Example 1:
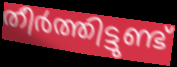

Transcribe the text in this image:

തീർത്തിട്ടുണ്ട്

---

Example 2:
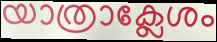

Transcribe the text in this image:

യാത്രാക്ലേശം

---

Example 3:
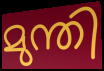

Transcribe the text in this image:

മുന്തി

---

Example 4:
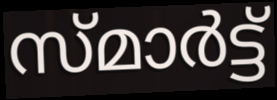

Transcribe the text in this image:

സ്മാർട്ട്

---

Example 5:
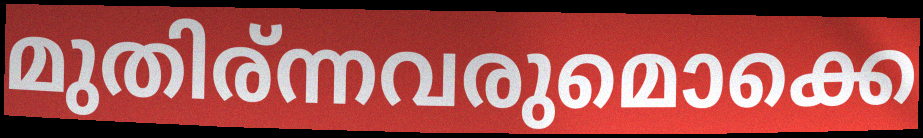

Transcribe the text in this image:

മുതിര്ന്നവരുമൊക്കെ